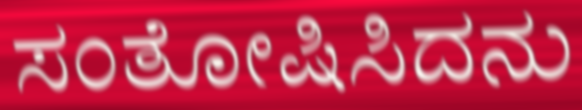
ಸಂತೋಷಿಸಿದನು